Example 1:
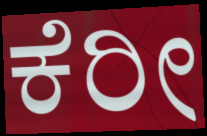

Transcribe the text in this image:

ಕೆರೀ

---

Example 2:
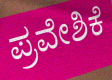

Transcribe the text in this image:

ಪ್ರವೇಶಿಕೆ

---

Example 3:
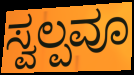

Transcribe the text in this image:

ಸ್ವಲ್ಪವೂ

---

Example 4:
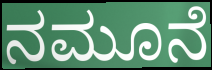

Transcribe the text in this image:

ನಮೂನೆ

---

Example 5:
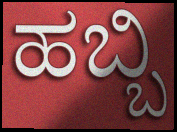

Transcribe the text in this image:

ಹಬ್ಬಿ